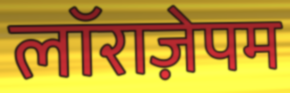
लॉराज़ेपम